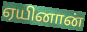
ஏயினான்